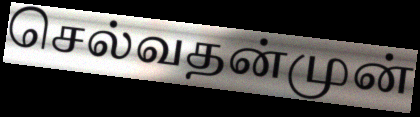
செல்வதன்முன்